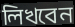
লিখবেন